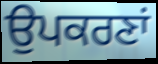
ਉਪਕਰਣਾਂ